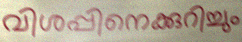
വിശപ്പിനെക്കുറിച്ചും